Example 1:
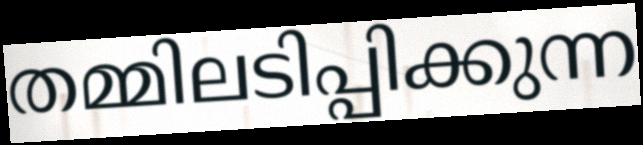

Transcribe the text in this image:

തമ്മിലടിപ്പിക്കുന്ന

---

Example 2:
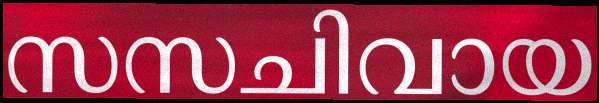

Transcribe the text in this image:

സസചിവായ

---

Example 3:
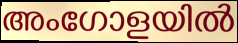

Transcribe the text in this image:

അംഗോളയിൽ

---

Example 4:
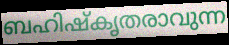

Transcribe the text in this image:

ബഹിഷ്കൃതരാവുന്ന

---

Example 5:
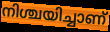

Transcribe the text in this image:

നിശ്ചയിച്ചാണ്